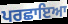
ਪਰਛਾਇਆ